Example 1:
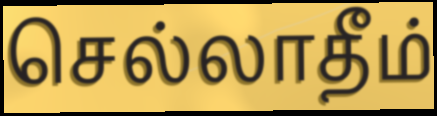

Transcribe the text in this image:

செல்லாதீம்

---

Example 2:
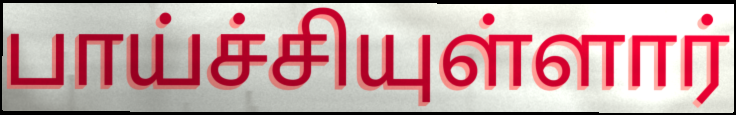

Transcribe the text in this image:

பாய்ச்சியுள்ளார்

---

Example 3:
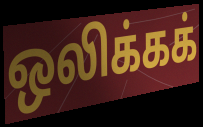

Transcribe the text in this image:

ஒலிக்கக்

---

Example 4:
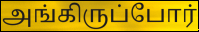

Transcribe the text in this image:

அங்கிருப்போர்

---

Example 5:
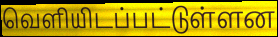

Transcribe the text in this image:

வெளியிடப்பட்டுள்ளன